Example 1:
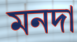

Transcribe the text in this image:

মনদা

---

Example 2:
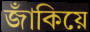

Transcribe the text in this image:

জাঁকিয়ে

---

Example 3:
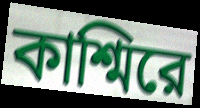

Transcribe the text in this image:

কাশ্মিরে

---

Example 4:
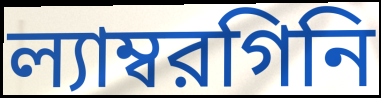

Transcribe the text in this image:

ল্যাম্বরগিনি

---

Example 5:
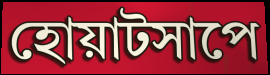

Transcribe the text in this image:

হোয়াটসাপে